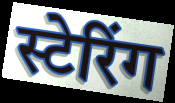
स्टेरिंग